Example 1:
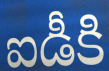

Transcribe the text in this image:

ఐడీకి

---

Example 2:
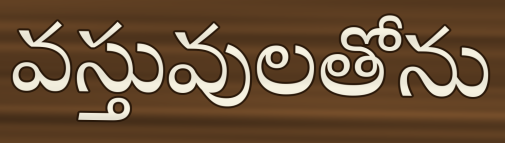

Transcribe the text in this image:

వస్తువులతోను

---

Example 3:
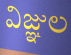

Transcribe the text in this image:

విజ్ఞుల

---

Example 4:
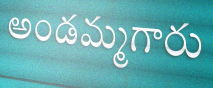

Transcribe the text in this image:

అండమ్మగారు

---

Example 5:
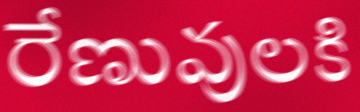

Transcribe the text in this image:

రేణువులకి